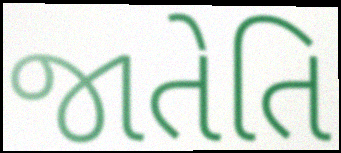
જાતેતિ